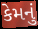
કેમનું